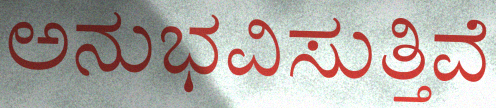
ಅನುಭವಿಸುತ್ತಿವೆ